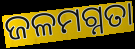
ଜଳମଗ୍ନତା